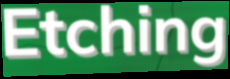
Etching